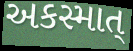
અકસ્માત્